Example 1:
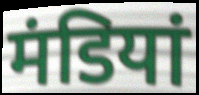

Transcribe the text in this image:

मंडियां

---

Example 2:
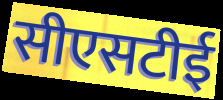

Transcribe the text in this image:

सीएसटीई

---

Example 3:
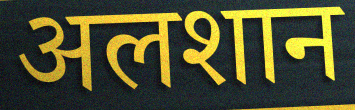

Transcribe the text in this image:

अलशान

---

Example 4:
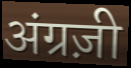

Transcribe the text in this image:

अंग्रज़ी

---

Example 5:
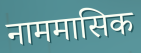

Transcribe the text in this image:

नाममासिक